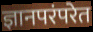
ज्ञानपरंपरेत